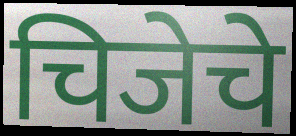
चिजेचे